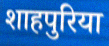
शाहपुरिया